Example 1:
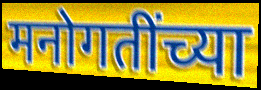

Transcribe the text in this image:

मनोगतींच्या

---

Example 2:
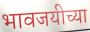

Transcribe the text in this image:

भावजयीच्या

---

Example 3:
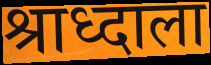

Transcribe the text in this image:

श्राध्दाला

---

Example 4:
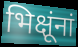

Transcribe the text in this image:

भिक्षूंनां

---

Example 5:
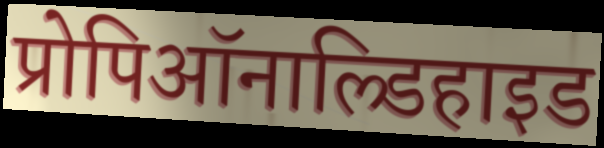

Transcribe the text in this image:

प्रोपिऑनाल्डिहाइड